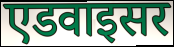
एडवाइसर